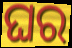
ଘର